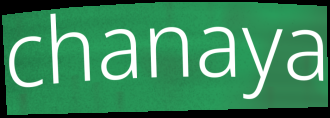
chanaya